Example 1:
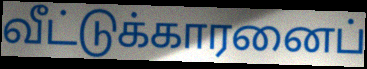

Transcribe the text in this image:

வீட்டுக்காரனைப்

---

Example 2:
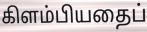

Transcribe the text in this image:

கிளம்பியதைப்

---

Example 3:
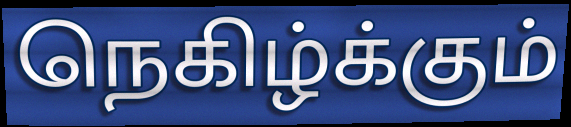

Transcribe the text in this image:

நெகிழ்க்கும்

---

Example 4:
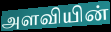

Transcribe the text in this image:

அளவியின்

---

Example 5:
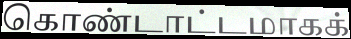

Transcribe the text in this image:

கொண்டாட்டமாகக்